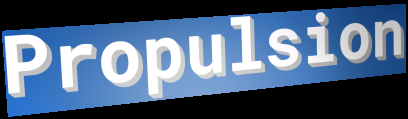
Propulsion